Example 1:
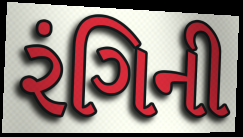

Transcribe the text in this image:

રંગિની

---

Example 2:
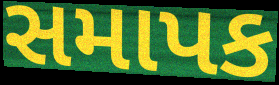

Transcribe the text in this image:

સમાપક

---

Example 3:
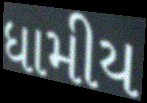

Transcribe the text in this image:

ધામીય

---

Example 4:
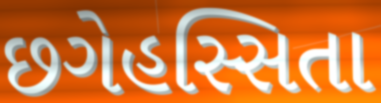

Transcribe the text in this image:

છગેહસ્સિતા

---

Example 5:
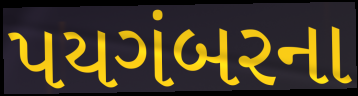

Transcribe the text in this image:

પયગંબરના